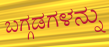
ಬಗ್ಗಡಗಳನ್ನು